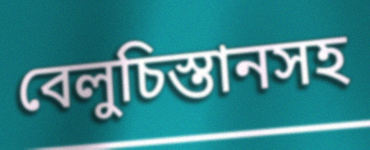
বেলুচিস্তানসহ